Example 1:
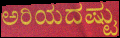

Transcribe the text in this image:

ಅರಿಯದಷ್ಟು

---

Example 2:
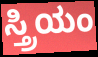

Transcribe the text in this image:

ಸ್ತ್ರಿಯಂ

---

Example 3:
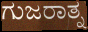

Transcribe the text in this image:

ಗುಜರಾತ್ನ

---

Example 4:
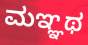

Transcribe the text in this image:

ಮಞ್ಞಥ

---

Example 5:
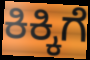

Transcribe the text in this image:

ಕಿಕ್ಕಿಗೆ